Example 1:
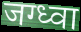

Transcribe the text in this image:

जग्ध्वा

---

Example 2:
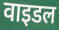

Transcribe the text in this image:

वाइडल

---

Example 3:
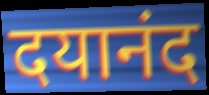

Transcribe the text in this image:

दयानंद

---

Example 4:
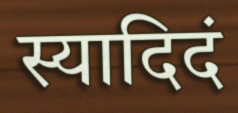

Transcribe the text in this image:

स्यादिदं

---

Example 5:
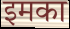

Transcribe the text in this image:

इमका